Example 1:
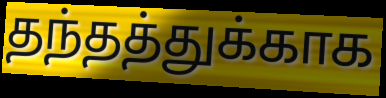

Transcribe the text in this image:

தந்தத்துக்காக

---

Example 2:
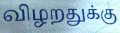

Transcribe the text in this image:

விழறதுக்கு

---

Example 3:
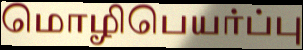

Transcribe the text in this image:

மொழிபெயர்ப்பு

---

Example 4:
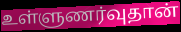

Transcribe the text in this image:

உள்ளுணர்வுதான்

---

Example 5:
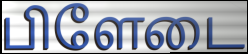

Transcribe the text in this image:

பிளேடை